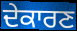
ਦੇਕਾਰਣ